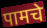
पामचे